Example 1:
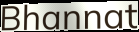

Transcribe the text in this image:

Bhannat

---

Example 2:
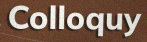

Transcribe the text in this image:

Colloquy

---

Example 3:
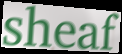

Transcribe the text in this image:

sheaf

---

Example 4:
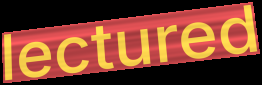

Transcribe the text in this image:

lectured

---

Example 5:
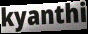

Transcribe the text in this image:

kyanthi